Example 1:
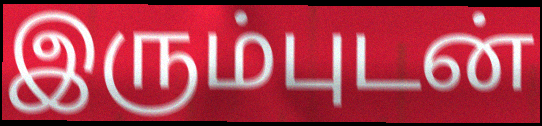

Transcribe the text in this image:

இரும்புடன்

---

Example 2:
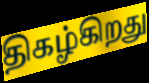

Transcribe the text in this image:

திகழ்கிறது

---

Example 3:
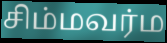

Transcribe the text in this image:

சிம்மவர்ம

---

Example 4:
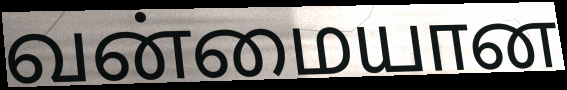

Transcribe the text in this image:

வன்மையான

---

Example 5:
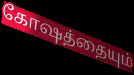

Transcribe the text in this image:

கோஷத்தையும்